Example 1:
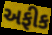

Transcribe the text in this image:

અફીક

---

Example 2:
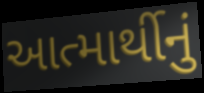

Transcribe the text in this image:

આત્માર્થીનું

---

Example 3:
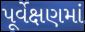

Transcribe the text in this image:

પૂર્વેક્ષણમાં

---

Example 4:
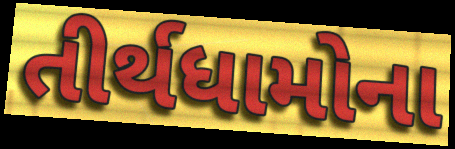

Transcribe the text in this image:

તીર્થધામોના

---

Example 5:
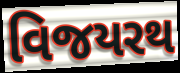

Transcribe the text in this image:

વિજયરથ